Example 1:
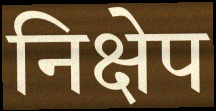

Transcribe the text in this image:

निक्षेप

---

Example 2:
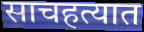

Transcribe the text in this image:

साचहत्यात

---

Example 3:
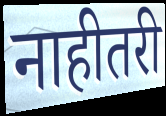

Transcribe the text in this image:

नाहीतरी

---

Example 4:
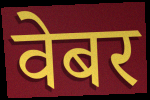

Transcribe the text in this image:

वेबर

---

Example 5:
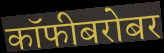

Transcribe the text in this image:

कॉफीबरोबर